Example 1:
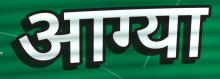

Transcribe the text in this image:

आग्या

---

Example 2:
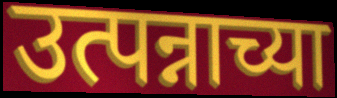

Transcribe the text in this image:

उत्पन्नाच्या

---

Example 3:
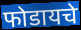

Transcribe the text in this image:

फोडायचे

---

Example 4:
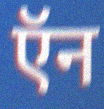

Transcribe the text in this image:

ऍन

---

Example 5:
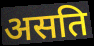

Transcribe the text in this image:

असति